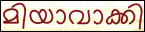
മിയാവാക്കി